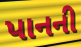
પાનની